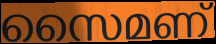
സൈമണ്